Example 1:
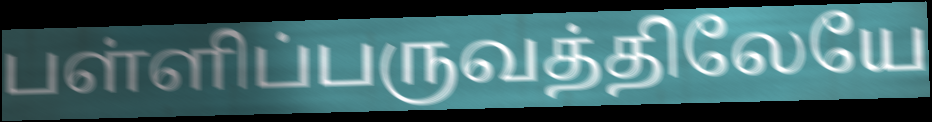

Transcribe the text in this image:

பள்ளிப்பருவத்திலேயே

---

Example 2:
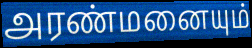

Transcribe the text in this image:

அரண்மனையும்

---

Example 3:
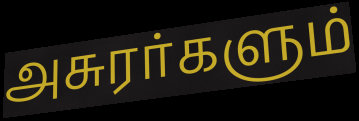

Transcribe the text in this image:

அசுரர்களும்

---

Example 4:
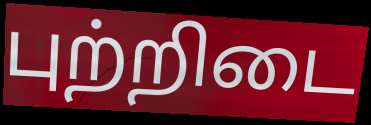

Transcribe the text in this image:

புற்றிடை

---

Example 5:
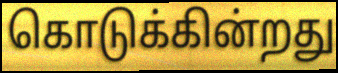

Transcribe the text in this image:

கொடுக்கின்றது